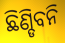
ଛିଣ୍ଡିବନି